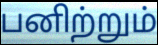
பனிற்றும்